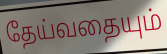
தேய்வதையும்